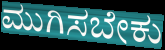
ಮುಗಿಸಬೇಕು